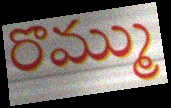
రొమ్ము